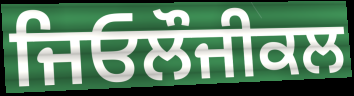
ਜਿਓਲੌਜੀਕਲ